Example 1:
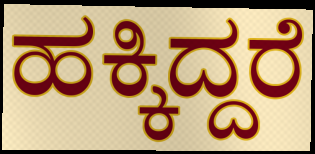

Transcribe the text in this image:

ಹಕ್ಕಿದ್ದರೆ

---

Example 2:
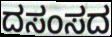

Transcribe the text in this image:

ದಸಂಸದ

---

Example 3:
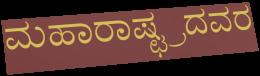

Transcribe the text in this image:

ಮಹಾರಾಷ್ಟ್ರದವರ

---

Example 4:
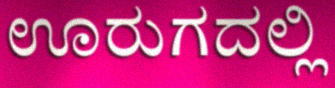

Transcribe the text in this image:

ಊರುಗದಲ್ಲಿ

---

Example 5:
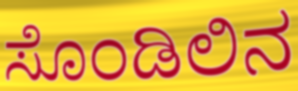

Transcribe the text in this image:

ಸೊಂಡಿಲಿನ